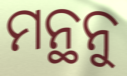
ମନ୍ଥନୁ